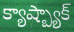
క్యాష్బ్యాక్